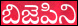
బిజెపిని